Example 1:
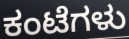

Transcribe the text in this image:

ಕಂಟೆಗಳು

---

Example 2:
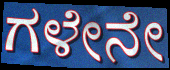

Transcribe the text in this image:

ಗಳೇನೇ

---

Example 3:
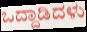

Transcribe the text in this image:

ಒದ್ದಾಡಿದಳು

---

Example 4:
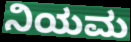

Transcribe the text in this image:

ನಿಯಮ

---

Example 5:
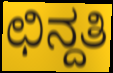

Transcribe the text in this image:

ಛಿನ್ದತಿ